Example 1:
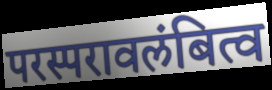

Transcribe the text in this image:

परस्परावलंबित्व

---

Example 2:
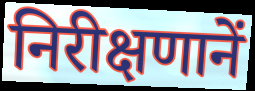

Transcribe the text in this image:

निरीक्षणानें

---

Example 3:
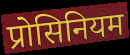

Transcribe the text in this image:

प्रोसिनियम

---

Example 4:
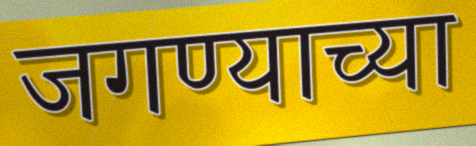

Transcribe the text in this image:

जगण्याच्या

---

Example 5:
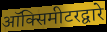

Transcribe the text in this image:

ऑक्सिमीटरद्वारे